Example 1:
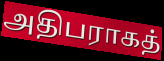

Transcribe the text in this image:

அதிபராகத்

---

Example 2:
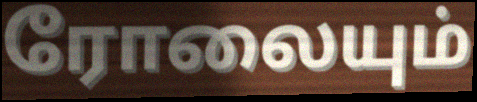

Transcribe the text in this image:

ரோலையும்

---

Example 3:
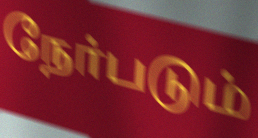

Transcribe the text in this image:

நேர்படும்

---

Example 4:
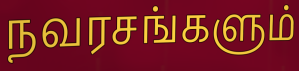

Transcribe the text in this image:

நவரசங்களும்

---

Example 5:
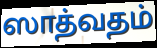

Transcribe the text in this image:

ஸாத்வதம்